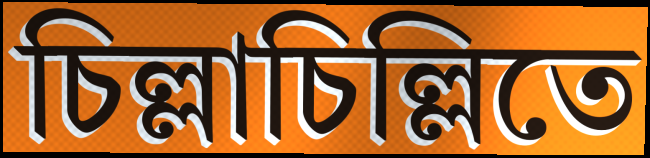
চিল্লাচিল্লিতে